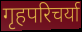
गृहपरिचर्या